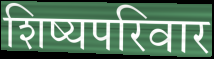
शिष्यपरिवार